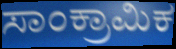
ಸಾಂಕ್ರಾಮಿಕ